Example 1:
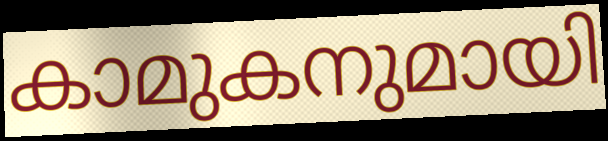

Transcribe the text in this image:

കാമുകനുമായി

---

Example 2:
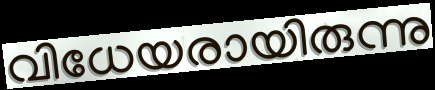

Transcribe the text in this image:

വിധേയരായിരുന്നു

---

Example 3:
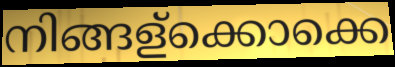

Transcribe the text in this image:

നിങ്ങള്ക്കൊക്കെ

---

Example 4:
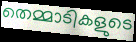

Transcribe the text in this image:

തെമ്മാടികളുടെ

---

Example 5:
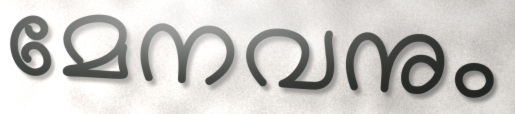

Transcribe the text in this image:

മേനവനും